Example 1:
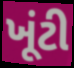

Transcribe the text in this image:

ખૂંટી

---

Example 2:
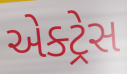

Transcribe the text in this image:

એક્ટ્રેસ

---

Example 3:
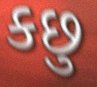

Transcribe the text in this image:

કછુ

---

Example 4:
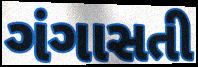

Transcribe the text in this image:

ગંગાસતી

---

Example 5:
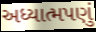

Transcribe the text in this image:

અધ્યાત્મપણું